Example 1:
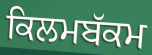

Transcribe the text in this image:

ਕਿਲਮਬੱਕਮ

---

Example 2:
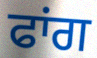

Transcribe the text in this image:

ਫਾਂਗ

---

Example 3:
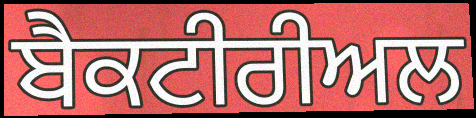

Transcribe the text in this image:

ਬੈਕਟੀਰੀਅਲ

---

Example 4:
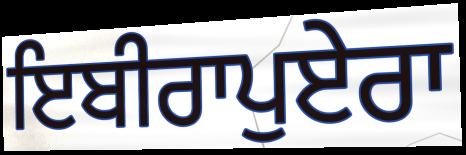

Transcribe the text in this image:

ਇਬੀਰਾਪੁਏਰਾ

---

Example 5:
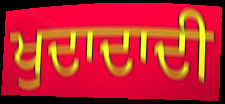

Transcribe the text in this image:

ਖੁਦਾਦਾਦੀ